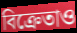
বিক্রেতাও